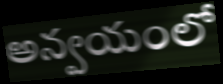
అన్వయంలో